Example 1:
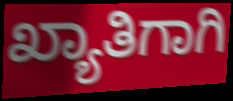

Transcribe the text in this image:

ಖ್ಯಾತಿಗಾಗಿ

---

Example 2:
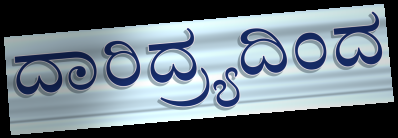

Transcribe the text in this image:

ದಾರಿದ್ರ್ಯದಿಂದ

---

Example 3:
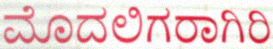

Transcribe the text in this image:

ಮೊದಲಿಗರಾಗಿರಿ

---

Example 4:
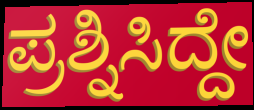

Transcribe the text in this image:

ಪ್ರಶ್ನಿಸಿದ್ದೇ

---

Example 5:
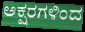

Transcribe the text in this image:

ಅಕ್ಷರಗಳಿಂದ